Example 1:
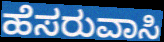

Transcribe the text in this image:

ಹೆಸರುವಾಸಿ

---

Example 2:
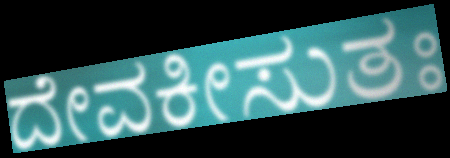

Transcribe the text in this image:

ದೇವಕೀಸುತಃ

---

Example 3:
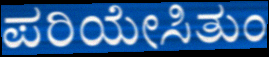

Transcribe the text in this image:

ಪರಿಯೇಸಿತುಂ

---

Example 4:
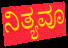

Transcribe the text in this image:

ನಿತ್ಯವೂ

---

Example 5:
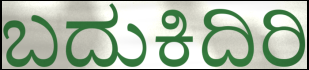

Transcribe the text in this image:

ಬದುಕಿದಿರಿ